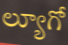
ల్యూగో